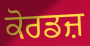
ਕੋਰਡਜ਼